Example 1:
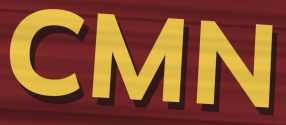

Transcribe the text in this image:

CMN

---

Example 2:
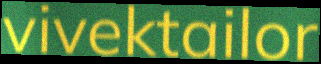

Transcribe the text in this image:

vivektailor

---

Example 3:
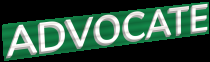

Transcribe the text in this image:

ADVOCATE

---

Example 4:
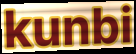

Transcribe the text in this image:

kunbi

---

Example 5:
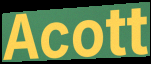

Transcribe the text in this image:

Acott